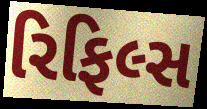
રિફિલ્સ